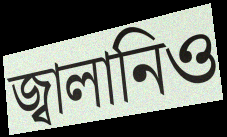
জ্বালানিও